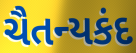
ચૈતન્યકંદ